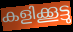
കളിക്കൂട്ടു